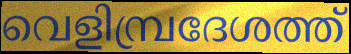
വെളിമ്പ്രദേശത്ത്